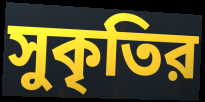
সুকৃতির